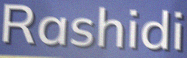
Rashidi